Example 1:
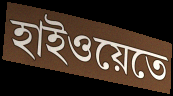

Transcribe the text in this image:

হাইওয়েতে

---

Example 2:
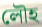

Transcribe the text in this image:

লৌহ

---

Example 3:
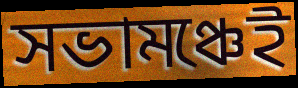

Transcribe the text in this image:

সভামঞ্চেই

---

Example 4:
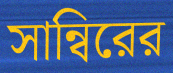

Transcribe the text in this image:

সান্বিরের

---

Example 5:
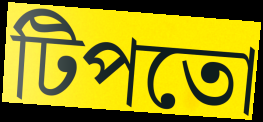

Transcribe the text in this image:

টিপতো